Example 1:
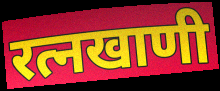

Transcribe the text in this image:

रत्नखाणी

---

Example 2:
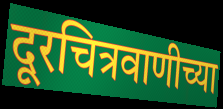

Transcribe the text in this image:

दूरचित्रवाणीच्या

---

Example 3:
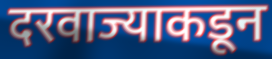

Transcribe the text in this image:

दरवाज्याकडून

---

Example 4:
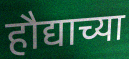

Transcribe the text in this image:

हौद्याच्या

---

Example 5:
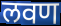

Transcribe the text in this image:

लवण